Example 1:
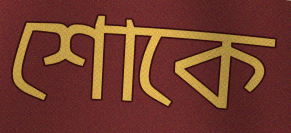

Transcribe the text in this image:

শোকে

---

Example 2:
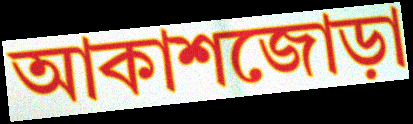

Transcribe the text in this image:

আকাশজোড়া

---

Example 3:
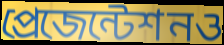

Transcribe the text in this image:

প্রেজেন্টেশনও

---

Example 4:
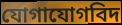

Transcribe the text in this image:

যোগাযোগবিদ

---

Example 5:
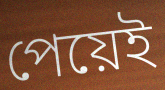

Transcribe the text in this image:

পেয়েই